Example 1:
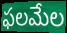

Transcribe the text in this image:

ఫలమేల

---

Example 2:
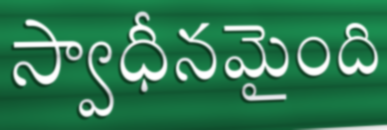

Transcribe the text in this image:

స్వాధీనమైంది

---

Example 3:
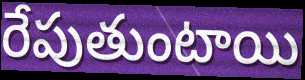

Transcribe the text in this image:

రేపుతుంటాయి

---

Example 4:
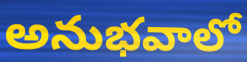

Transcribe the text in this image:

అనుభవాలో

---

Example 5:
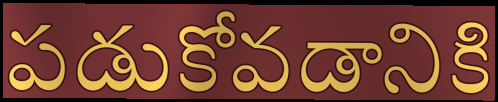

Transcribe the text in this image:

పడుకోవడానికి